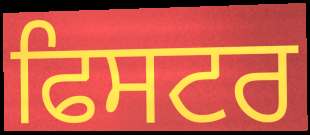
ਫਿਸਟਰ